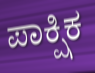
ಪಾಕ್ಷಿಕ